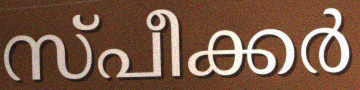
സ്പീക്കർ